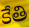
కేతి